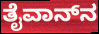
ತೈವಾನ್‌ನ